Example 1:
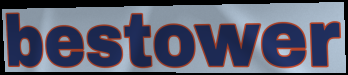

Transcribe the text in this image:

bestower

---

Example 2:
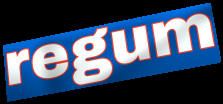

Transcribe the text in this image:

regum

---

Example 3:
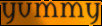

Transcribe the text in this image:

yummy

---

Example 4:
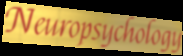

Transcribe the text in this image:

Neuropsychology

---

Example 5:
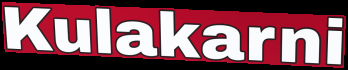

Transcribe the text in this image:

Kulakarni